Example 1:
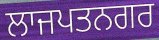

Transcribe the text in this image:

ਲਾਜਪਤਨਗਰ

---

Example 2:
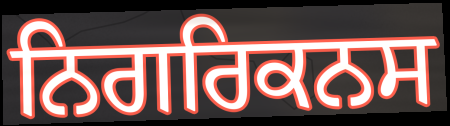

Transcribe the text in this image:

ਨਿਗਰਿਕਨਸ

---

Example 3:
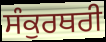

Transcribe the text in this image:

ਸੰਕੁਰਥਰੀ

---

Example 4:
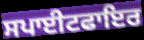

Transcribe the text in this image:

ਸਪਾਈਟਫਾਇਰ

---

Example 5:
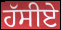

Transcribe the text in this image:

ਹੱਸੀਏ